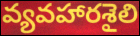
వ్యవహారశైలి